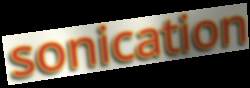
sonication